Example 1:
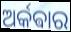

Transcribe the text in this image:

ଅର୍କଵାର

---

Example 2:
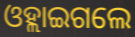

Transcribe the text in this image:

ଓହ୍ଲାଇଗଲେ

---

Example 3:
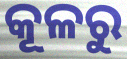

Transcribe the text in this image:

କୂଳରୁ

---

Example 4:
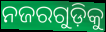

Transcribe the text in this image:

ନଜରଗୁଡ଼ିକୁ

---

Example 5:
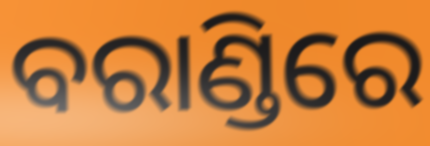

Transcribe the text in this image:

ବରାଣ୍ଡିରେ